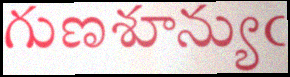
గుణశూన్యుఁ